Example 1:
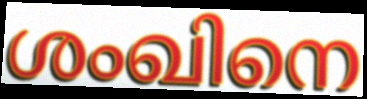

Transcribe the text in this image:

ശംഖിനെ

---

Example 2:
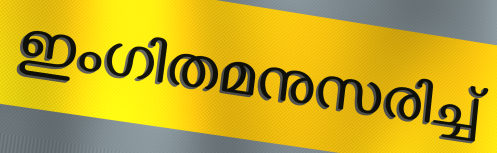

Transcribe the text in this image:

ഇംഗിതമനുസരിച്ച്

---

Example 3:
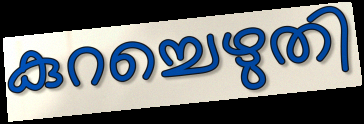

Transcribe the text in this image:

കുറച്ചെഴുതി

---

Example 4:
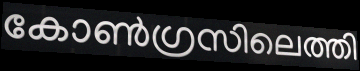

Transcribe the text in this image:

കോൺഗ്രസിലെത്തി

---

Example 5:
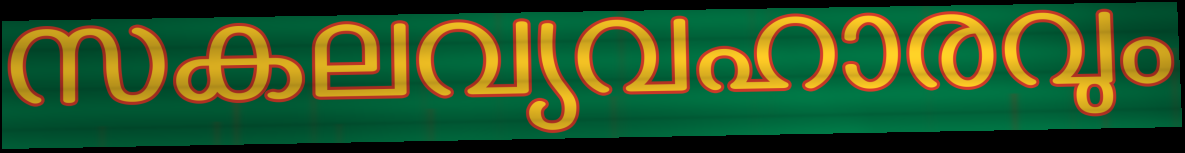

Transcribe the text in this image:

സകലവ്യവഹാരവും